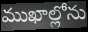
ముఖాల్లోను